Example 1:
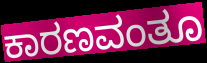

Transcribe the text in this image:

ಕಾರಣವಂತೂ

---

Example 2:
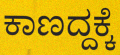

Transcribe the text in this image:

ಕಾಣದ್ದಕ್ಕೆ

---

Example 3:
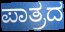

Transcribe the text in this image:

ಪಾತ್ರದ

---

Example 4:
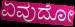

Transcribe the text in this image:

ಏವುದೋ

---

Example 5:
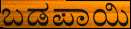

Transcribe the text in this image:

ಬಡಪಾಯಿ